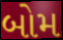
બોમ